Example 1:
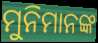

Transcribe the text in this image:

ମୁନିମାନଙ୍କ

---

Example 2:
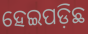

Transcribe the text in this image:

ହେଇପଡ଼ିଛ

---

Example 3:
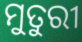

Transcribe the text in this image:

ମୁତୁରୀ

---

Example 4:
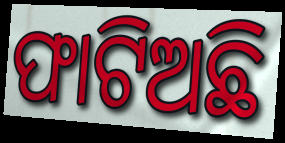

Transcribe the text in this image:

ଫାଟିଅଛି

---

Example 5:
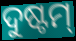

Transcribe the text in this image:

ଦୁଷ୍ଟମ୍